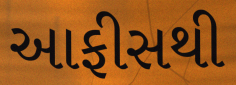
આફીસથી